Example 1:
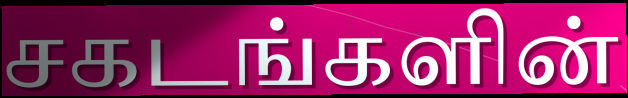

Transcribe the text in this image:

சகடங்களின்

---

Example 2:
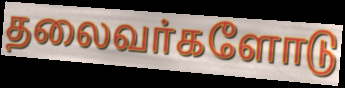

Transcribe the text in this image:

தலைவர்களோடு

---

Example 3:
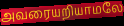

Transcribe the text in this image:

அவரையறியாமலே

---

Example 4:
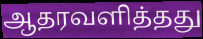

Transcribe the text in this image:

ஆதரவளித்தது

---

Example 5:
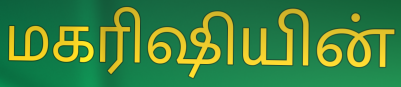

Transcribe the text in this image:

மகரிஷியின்